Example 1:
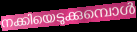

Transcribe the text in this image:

നക്കിയെടുക്കുമ്പൊൾ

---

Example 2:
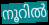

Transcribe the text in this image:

നൂറിൽ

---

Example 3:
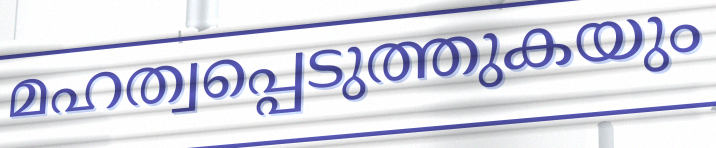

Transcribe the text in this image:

മഹത്വപ്പെടുത്തുകയും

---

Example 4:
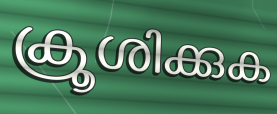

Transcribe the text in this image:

ക്രൂശിക്കുക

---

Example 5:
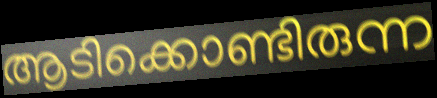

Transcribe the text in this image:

ആടിക്കൊണ്ടിരുന്ന